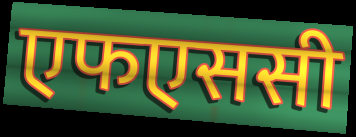
एफएससी